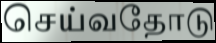
செய்வதோடு